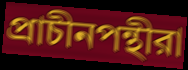
প্রাচীনপন্থীরা